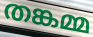
തങ്കമ്മ